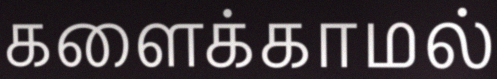
களைக்காமல்